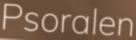
Psoralen